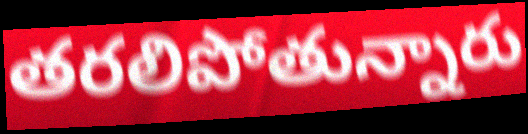
తరలిపోతున్నారు